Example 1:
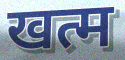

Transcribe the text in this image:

खत्म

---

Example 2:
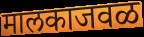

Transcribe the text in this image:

मालकाजवळ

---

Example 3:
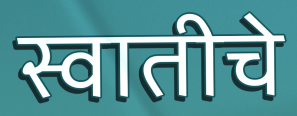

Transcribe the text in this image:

स्वातीचे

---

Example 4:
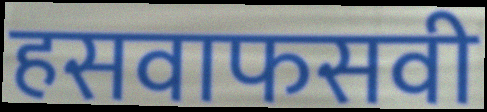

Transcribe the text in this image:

हसवाफसवी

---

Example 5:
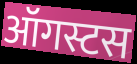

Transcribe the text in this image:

ऑगस्टस